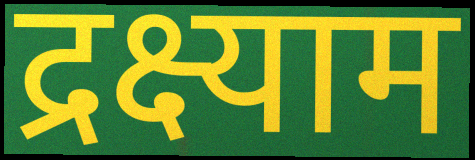
द्रक्ष्याम